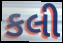
કલી